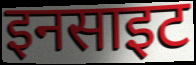
इनसाइट